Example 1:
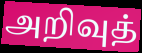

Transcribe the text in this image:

அறிவுத்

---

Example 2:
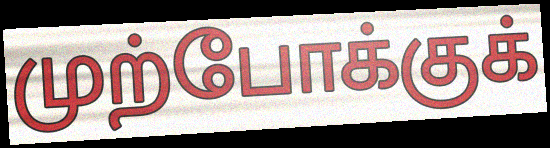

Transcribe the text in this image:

முற்போக்குக்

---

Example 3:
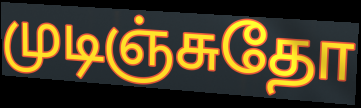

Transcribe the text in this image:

முடிஞ்சுதோ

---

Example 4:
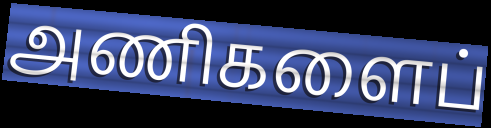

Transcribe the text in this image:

அணிகளைப்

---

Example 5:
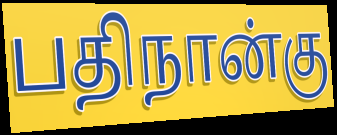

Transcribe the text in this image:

பதிநான்கு